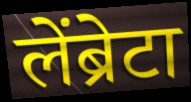
लेंब्रेटा